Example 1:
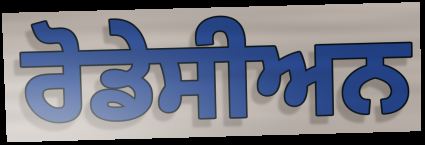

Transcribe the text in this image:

ਰੋਡੇਸੀਅਨ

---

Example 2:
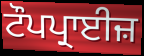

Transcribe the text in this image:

ਟੌਪਪ੍ਰਾਈਜ਼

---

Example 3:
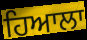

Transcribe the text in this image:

ਹਿਆਲਾ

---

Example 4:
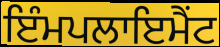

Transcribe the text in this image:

ਇੰਮਪਲਾਇਮੈਂਟ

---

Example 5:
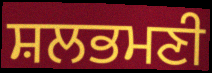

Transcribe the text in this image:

ਸ਼ਲਭਮਣੀ